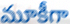
మూకీగా